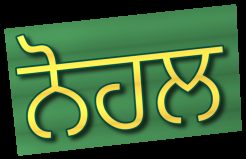
ਨੋਹਲ